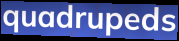
quadrupeds